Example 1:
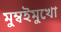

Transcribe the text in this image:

মুম্বইমুখো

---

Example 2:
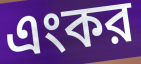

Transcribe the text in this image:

এংকর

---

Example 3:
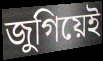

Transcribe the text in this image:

জুগিয়েই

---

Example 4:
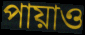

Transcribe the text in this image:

পায়াও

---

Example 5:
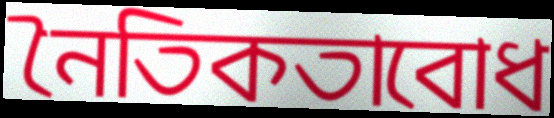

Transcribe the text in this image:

নৈতিকতাবোধ